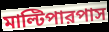
মাল্টিপারপাস